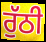
ਰੁੱਠੀ